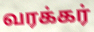
வரக்கர்